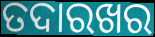
ତଦାରଖର